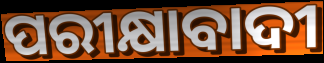
ପରୀକ୍ଷାବାଦୀ